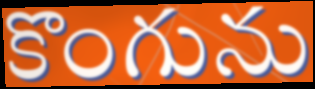
కొంగును